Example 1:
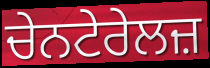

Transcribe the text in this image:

ਚੇਨਟੇਰੇਲਜ਼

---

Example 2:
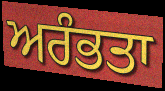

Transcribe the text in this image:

ਅਰੰਭਤਾ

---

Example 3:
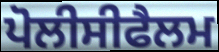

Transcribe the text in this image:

ਪੋਲੀਸੀਫੈਲਮ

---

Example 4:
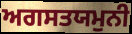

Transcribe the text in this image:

ਅਗਸਤਯਮੁਨੀ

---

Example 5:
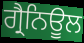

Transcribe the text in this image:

ਗ੍ਰੈਨਿਊਲ